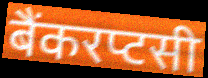
बैंकरप्टसी